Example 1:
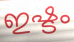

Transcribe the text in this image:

ഇഷ്ടം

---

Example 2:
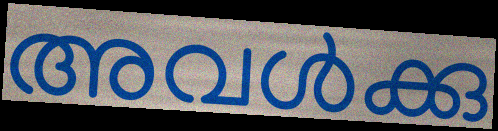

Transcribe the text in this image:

അവൾക്കു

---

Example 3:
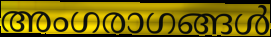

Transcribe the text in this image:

അംഗരാഗങ്ങൾ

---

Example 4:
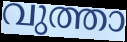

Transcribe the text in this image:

വുത്താ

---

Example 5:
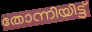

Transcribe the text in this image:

തോന്നിയിട്ട്